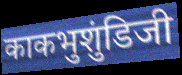
काकभुशुंडिजी